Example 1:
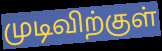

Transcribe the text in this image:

முடிவிற்குள்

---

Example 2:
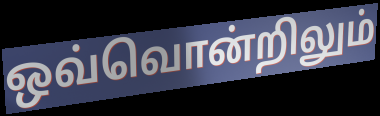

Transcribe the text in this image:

ஒவ்வொன்றிலும்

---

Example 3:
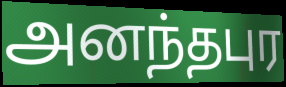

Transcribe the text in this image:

அனந்தபுர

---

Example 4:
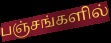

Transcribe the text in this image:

பஞ்சங்களில்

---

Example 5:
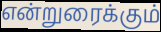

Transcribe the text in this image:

என்றுரைக்கும்